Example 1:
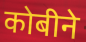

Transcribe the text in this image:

कोबीने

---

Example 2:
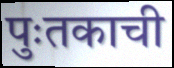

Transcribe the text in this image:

पुःतकाची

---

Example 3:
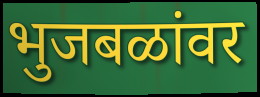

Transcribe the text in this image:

भुजबळांवर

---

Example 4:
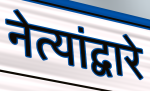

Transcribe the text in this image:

नेत्यांद्वारे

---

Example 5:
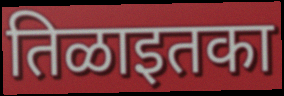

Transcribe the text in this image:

तिळाइतका